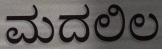
ಮದಲಿಲ